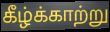
கீழ்க்காற்று